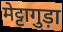
मेट्टागुड़ा